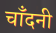
चाँदनी